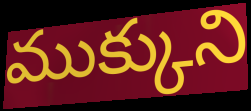
ముక్కుని